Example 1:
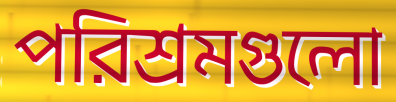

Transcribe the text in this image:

পরিশ্রমগুলো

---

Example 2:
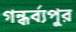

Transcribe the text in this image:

গন্ধর্ব্যপুর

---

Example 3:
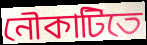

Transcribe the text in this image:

নৌকাটিতে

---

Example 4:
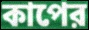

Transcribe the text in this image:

কাপের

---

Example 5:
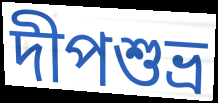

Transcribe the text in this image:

দীপশুভ্র